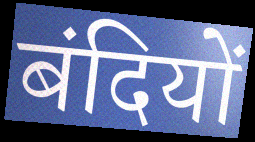
बंदियों